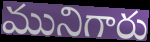
మునిగారు